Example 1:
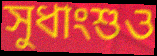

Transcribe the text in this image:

সুধাংশুও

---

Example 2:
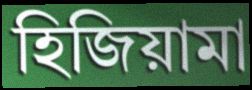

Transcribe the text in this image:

হিজিয়ামা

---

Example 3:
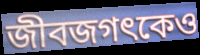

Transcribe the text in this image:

জীবজগৎকেও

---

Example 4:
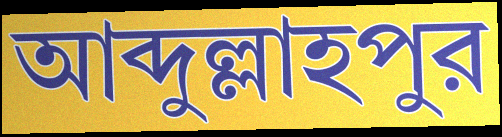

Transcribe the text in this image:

আব্দুল্লাহপুর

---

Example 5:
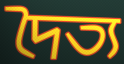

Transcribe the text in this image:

দৈত্য